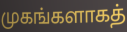
முகங்களாகத்